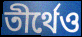
তীর্থেও